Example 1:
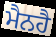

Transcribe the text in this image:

ਮੈਨਹੈ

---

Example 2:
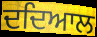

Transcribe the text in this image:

ਦਦਿਆਲ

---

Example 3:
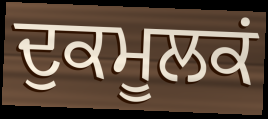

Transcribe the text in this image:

ਦੁਕਮੂਲਕਂ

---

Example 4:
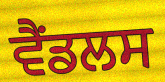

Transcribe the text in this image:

ਵੈਂਡਲਸ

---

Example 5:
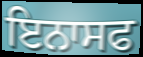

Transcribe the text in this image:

ਇਨਾਸਫ